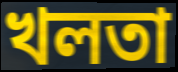
খলতা